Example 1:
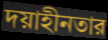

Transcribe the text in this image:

দয়াহীনতার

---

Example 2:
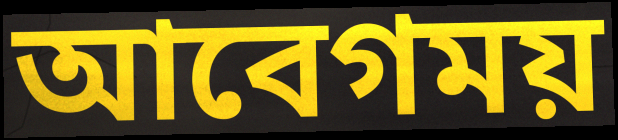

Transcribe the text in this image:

আবেগময়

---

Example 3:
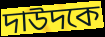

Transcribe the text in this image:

দাউদকে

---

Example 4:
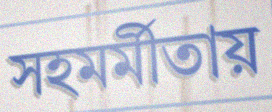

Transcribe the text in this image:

সহমর্মীতায়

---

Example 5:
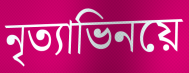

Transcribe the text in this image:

নৃত্যাভিনয়ে